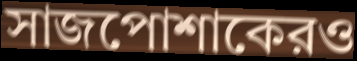
সাজপোশাকেরও